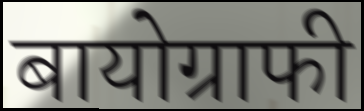
बायोग्राफी